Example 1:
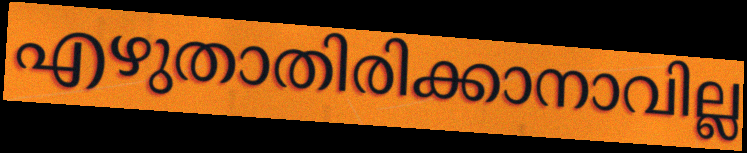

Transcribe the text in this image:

എഴുതാതിരിക്കാനാവില്ല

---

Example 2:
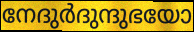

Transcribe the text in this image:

നേദുർദുന്ദുഭയോ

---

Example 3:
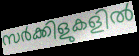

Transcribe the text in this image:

സർക്കിളുകളിൽ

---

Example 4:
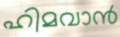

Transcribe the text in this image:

ഹിമവാൻ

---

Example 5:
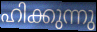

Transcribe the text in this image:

ഹിക്കുന്നു